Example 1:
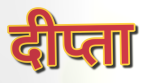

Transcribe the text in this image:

दीप्ता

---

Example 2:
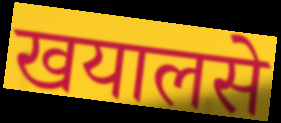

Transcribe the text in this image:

खयालसे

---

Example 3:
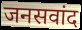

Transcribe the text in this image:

जनसवांद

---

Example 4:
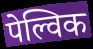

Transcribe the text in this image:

पेल्विक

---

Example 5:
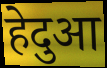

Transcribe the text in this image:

हेदुआ